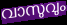
വാസുവും